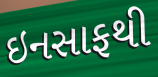
ઇનસાફથી